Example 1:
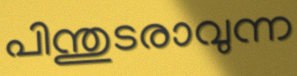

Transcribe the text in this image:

പിന്തുടരാവുന്ന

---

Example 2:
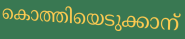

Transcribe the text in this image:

കൊത്തിയെടുക്കാന്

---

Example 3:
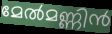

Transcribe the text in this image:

മേൽമണ്ണിൻ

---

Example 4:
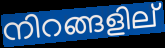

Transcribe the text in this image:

നിറങ്ങളില്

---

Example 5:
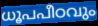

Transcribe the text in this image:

ധൂപപീഠവും